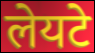
लेयटे